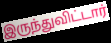
இருந்துவிட்டார்